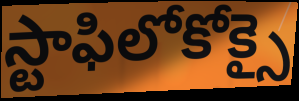
స్టాఫిలోకోక్సై